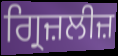
ਗ੍ਰਿਜ਼ਲੀਜ਼